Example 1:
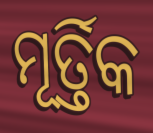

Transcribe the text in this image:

ମୂର୍ତ୍ତିକ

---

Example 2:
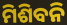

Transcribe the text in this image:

ମିଶିବନି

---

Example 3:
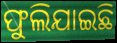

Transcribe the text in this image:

ଫୁଲିଯାଇଛି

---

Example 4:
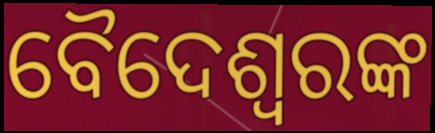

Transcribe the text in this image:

ବୈଦେଶ୍ୱରଙ୍କ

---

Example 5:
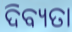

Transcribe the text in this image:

ଦିବ୍ୟତା